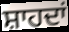
ਸ਼ਾਹਦਾਂ